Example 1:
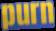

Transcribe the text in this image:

purn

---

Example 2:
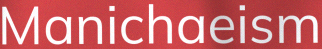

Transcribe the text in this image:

Manichaeism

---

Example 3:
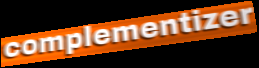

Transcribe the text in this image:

complementizer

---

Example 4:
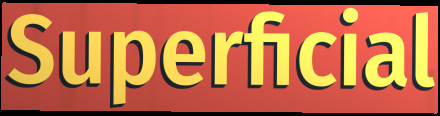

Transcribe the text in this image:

Superficial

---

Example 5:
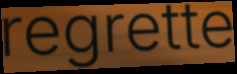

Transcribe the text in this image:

regrette